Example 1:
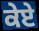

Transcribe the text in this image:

ਕੇਏ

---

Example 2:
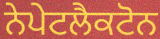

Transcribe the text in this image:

ਨੇਪੇਟਲੈਕਟੋਨ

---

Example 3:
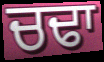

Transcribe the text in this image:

ਚਢਾ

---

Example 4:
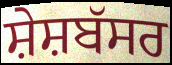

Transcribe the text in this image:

ਸ਼ੇਸ਼ਬੱਸਰ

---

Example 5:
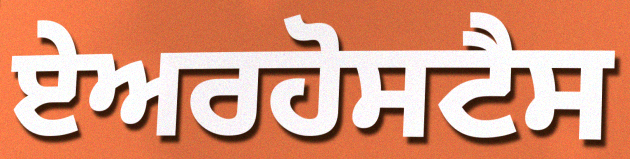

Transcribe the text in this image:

ਏਅਰਹੋਸਟੈਸ